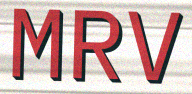
MRV